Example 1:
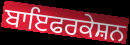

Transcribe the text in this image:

ਬਾਇਫਰਕੇਸ਼ਨ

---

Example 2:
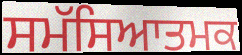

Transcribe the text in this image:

ਸਮੱਸਿਆਤਮਕ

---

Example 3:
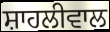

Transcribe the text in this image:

ਸ਼ਾਹਲੀਵਾਲ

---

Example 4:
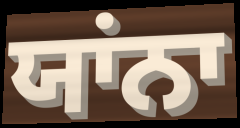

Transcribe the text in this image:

ਯਾਂਨਾ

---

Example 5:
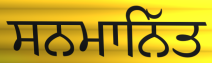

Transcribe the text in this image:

ਸਨਮਾਨਿੱਤ